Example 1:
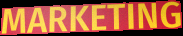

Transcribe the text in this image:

MARKETING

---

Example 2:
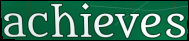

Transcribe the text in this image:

achieves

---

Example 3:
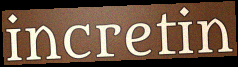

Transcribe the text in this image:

incretin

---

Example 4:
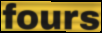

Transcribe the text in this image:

fours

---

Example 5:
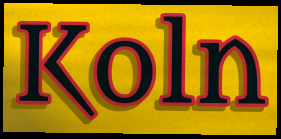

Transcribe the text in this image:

Koln